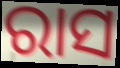
ରାସ